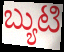
ಬ್ಯುಟಿ